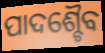
ପାଦଶ୍ଚୈବ